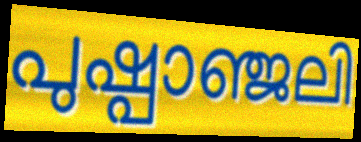
പുഷ്പാഞ്ജലി